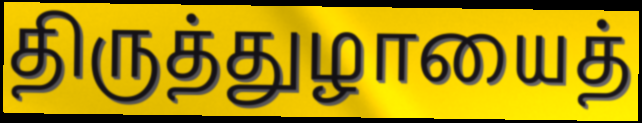
திருத்துழாயைத்